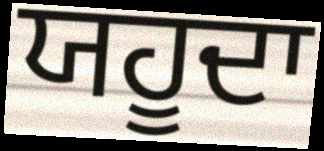
ਯਹੂਦਾ